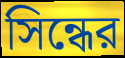
সিন্ধের